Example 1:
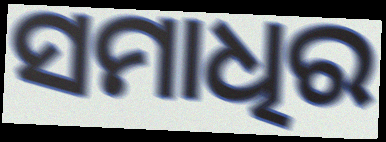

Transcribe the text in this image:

ସମାଧିର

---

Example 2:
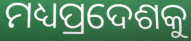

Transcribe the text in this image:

ମଧ୍ୟପ୍ରଦେଶକୁ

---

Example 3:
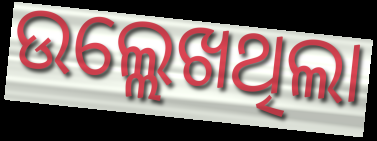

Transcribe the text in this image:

ଉଲ୍ଲେଖଥିଲା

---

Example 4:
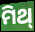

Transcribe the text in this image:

ମିଥ୍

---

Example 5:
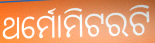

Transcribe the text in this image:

ଥର୍ମୋମିଟରଟି